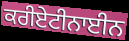
ਕਰੀਏਟੀਨਾਈਨ